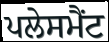
ਪਲੇਸਮੈਂਟ